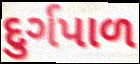
દુર્ગપાળ